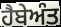
ਹੈਬੇਅੰਤ